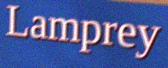
Lamprey